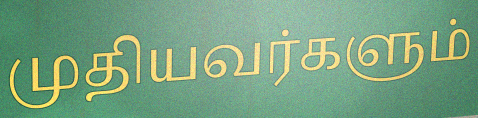
முதியவர்களும்